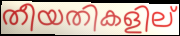
തീയതികളില്